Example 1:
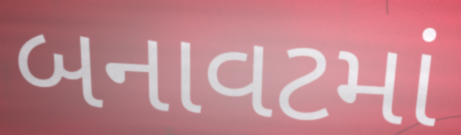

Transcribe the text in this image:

બનાવટમાં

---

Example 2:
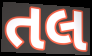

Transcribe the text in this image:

તલ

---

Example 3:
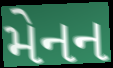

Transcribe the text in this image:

મેનન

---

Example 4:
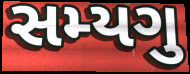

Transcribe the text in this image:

સમ્યગુ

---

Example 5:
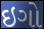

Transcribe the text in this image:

ઇગો